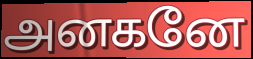
அனகனே